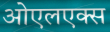
ओएलएक्स